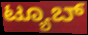
ಟ್ಯೂಬ್